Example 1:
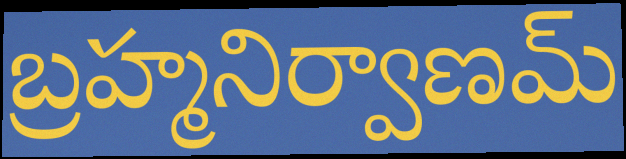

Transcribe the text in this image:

బ్రహ్మనిర్వాణమ్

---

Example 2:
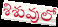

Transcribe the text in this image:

శిశువులో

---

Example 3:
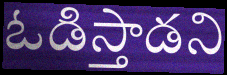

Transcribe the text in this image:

ఓడిస్తాడని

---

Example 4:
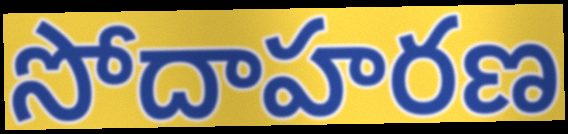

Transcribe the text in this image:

సోదాహరణ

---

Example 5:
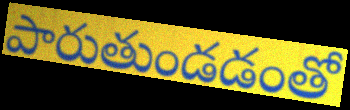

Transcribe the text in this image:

పారుతుండడంతో